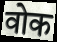
वोक